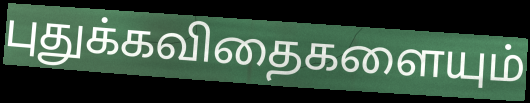
புதுக்கவிதைகளையும்